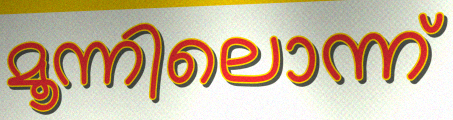
മൂന്നിലൊന്ന്